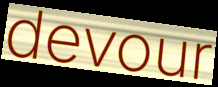
devour